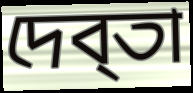
দেব্‌তা